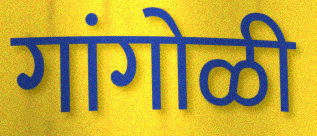
गांगोळी